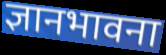
ज्ञानभावना